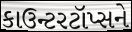
કાઉન્ટરટૉપ્સને